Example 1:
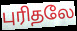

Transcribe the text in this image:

புரிதலே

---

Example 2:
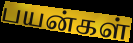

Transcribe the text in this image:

பயன்கள்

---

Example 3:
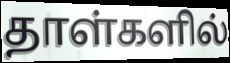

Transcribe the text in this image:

தாள்களில்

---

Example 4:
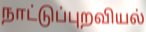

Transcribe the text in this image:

நாட்டுப்புறவியல்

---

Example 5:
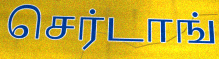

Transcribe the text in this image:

செர்டாங்